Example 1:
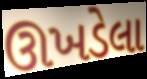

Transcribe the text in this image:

ઊખડેલા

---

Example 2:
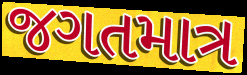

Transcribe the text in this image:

જગતમાત્ર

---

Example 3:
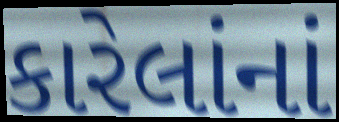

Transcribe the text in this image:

કારેલાંનાં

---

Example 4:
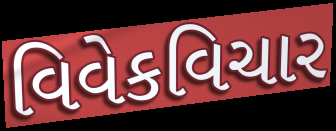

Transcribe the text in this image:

વિવેકવિચાર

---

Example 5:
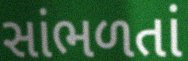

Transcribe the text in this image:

સાંભળતાં